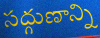
సద్గుణాన్ని